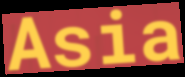
Asia